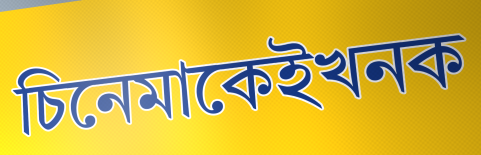
চিনেমাকেইখনক